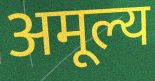
अमूल्य